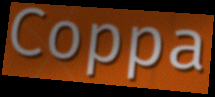
Coppa